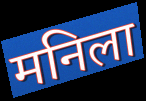
मनिला